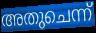
അതുചെന്ന്